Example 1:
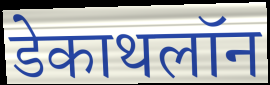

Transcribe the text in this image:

डेकाथलॉन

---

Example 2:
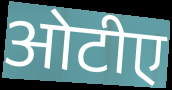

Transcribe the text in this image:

ओटीए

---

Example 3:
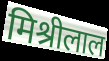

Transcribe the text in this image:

मिश्रीलाल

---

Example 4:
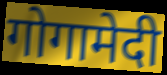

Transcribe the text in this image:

गोगामेदी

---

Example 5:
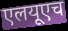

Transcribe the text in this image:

एलयूएच